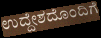
ಉದ್ದೇಶದೊಂದಿಗೆ